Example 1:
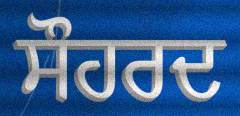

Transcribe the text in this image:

ਸੌਹਰਦ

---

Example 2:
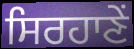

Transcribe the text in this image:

ਸਿਰਹਾਣੇਂ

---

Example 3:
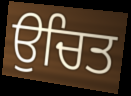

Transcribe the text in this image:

ਉਚਿਤ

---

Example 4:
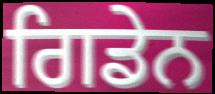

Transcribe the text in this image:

ਗਿਡੇਨ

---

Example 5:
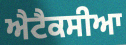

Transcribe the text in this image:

ਐਟੈਕਸੀਆ